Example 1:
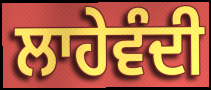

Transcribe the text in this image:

ਲਾਹੇਵੰਦੀ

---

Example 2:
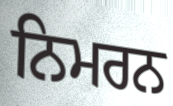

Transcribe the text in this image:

ਨਿਮਰਨ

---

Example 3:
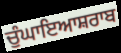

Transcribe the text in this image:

ਚੁੰਘਾਇਆਸ਼ਰਾਬ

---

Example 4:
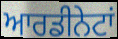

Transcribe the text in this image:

ਆਰਡੀਨੇਟਾਂ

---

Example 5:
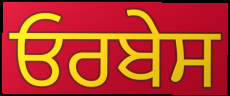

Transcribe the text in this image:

ਓਰਬੇਸ